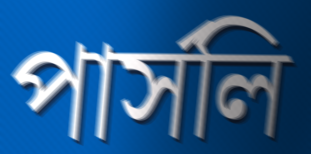
পার্সলি